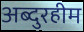
अब्दुरहीम